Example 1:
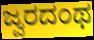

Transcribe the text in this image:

ಜ್ವರದಂಥ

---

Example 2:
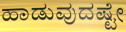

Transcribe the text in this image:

ಹಾಡುವುದಷ್ಟೇ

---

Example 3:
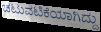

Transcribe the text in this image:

ಚಟುವಟಿಕೆಯಾಗಿದ್ದು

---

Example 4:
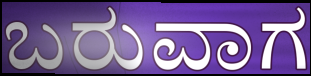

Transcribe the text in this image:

ಬರುವಾಗ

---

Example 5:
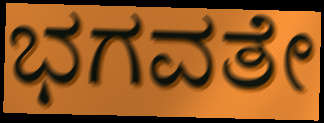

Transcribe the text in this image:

ಭಗವತೇ